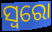
ସ୍ୱରୋ